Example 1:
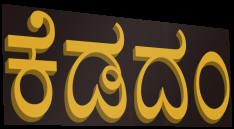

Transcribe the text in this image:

ಕೆಡದಂ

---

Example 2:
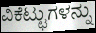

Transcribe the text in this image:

ವಿಕೆಟ್ಟುಗಳನ್ನು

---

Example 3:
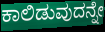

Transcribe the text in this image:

ಕಾಲಿಡುವುದನ್ನೇ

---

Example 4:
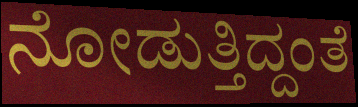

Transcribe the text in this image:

ನೋಡುತ್ತಿದ್ದಂತೆ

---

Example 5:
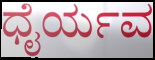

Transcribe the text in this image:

ಧೈರ್ಯವ